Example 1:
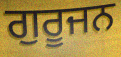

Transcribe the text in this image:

ਗੁਰੂਜਨ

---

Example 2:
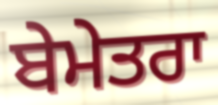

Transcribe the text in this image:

ਬੇਮੇਤਰਾ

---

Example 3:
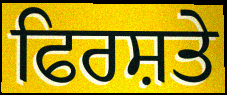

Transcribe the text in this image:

ਫਿਰਸ਼ਤੇ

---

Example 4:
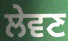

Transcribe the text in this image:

ਲੇਵਣ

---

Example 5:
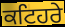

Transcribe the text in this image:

ਕਟਿਹਰੇ